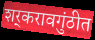
शर्करावगुंठीत